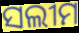
ସଲୀମ